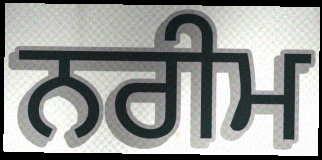
ਨਰੀਮ